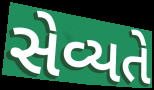
સેવ્યતે